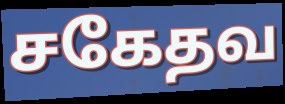
சகேதவ